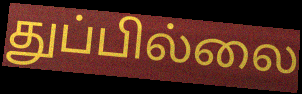
துப்பில்லை